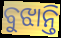
ବୁଝାନ୍ତି